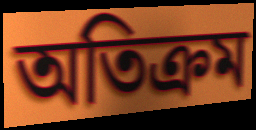
অতিক্ৰম